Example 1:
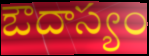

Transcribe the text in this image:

ఔదాస్యం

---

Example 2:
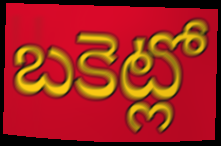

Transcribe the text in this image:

బకెట్లో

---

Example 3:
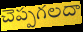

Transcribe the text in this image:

చెప్పగలదా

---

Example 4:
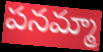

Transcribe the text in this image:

పనమ్మా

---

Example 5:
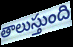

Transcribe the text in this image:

తాలుస్తుంది